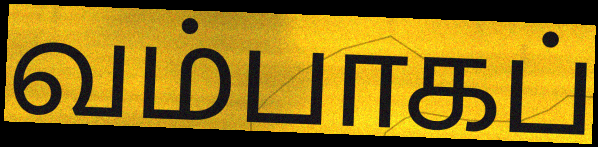
வம்பாகப்